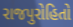
રાજપુરોહિતો